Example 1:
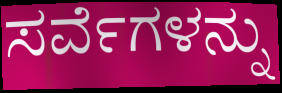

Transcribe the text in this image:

ಸರ್ವೆಗಳನ್ನು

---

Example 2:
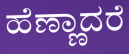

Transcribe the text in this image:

ಹೆಣ್ಣಾದರೆ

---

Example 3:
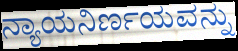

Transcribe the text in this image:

ನ್ಯಾಯನಿರ್ಣಯವನ್ನು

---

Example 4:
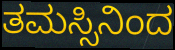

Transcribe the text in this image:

ತಮಸ್ಸಿನಿಂದ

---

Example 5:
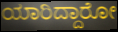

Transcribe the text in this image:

ಯಾರಿದ್ದಾರೋ